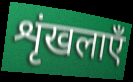
शृंखलाएँ